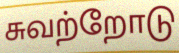
சுவற்றோடு